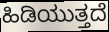
ಹಿಡಿಯುತ್ತದೆ